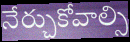
నేర్చుకోవాల్సి